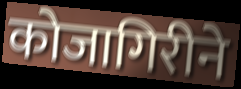
कोजागिरीने